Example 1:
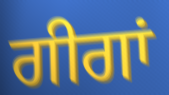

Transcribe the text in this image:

ਗੀਗਾਂ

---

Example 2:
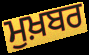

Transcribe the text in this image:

ਮੁਖ਼ਬਰ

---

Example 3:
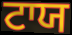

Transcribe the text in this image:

ਟਾਯ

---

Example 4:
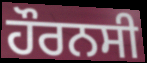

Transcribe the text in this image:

ਹੌਰਨਸੀ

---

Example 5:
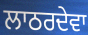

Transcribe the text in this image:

ਲਾਠਰਦੇਵਾ